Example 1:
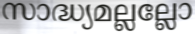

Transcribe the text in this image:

സാദ്ധ്യമല്ലല്ലോ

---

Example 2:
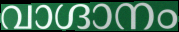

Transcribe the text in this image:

വാഗ്ദാനം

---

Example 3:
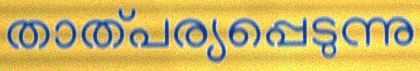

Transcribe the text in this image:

താത്പര്യപ്പെടുന്നു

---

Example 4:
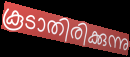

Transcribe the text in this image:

കൂടാതിരിക്കുന്നു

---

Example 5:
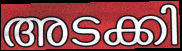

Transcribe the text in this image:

അടക്കി